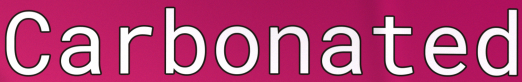
Carbonated